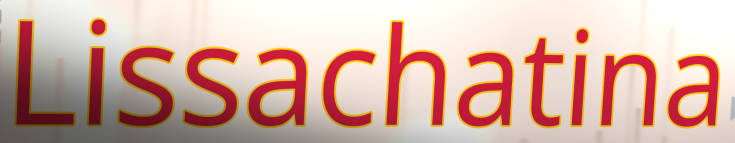
Lissachatina